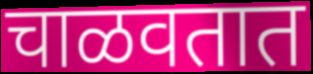
चाळवतात